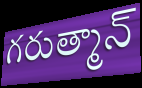
గరుత్మాన్